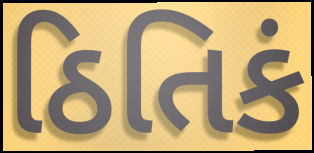
ઠિતિકં